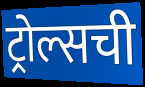
ट्रोल्सची